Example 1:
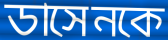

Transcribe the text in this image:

ডাসেনকে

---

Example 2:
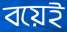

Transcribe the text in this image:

বয়েই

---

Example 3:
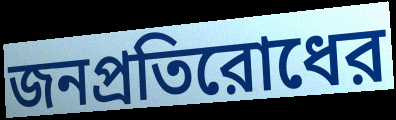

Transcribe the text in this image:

জনপ্রতিরোধের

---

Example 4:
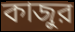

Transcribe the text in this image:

কাজুর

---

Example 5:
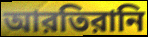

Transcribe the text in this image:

আরতিরানি